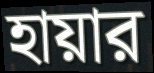
হায়ার